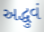
અદ્ધુવં